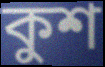
কুশ